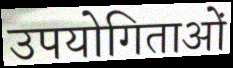
उपयोगिताओं